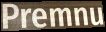
Premnu